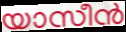
യാസീൻ